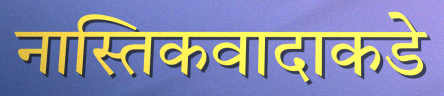
नास्तिकवादाकडे